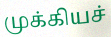
முக்கியச்